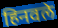
हिनवले